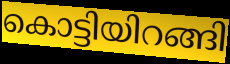
കൊട്ടിയിറങ്ങി